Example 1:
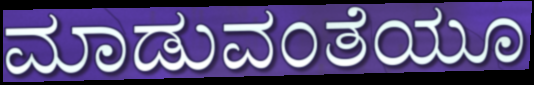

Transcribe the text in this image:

ಮಾಡುವಂತೆಯೂ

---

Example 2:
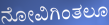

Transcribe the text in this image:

ನೋವಿಗಿಂತಲೂ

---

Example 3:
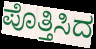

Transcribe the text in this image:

ಪೊತ್ತಿಸಿದ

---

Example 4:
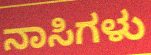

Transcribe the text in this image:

ನಾಸಿಗಳು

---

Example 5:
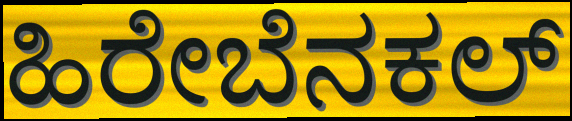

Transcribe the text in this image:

ಹಿರೇಬೆನಕಲ್